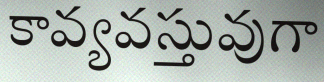
కావ్యవస్తువుగా